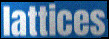
lattices